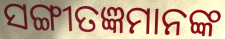
ସଙ୍ଗୀତଜ୍ଞମାନଙ୍କ